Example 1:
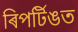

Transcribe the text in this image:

ৰিপৰ্টিঙত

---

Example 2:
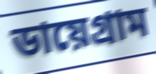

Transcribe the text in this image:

ডায়েগ্ৰাম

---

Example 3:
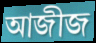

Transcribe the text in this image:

আজীজ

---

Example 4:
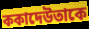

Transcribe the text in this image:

ককাদেউতাকে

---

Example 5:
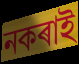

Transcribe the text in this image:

নকৰাই